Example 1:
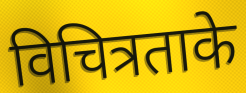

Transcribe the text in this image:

विचित्रताके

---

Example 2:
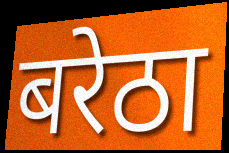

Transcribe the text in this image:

बरेठा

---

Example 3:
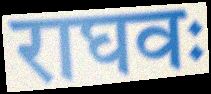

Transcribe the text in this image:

राघवः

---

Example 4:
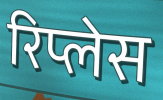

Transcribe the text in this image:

रिप्लेस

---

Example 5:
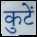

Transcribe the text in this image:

कुटें